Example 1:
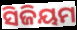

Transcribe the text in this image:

ସିଜିୟମ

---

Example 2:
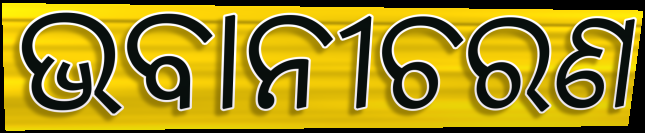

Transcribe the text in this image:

ଭବାନୀଚରଣ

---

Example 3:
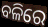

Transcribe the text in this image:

ବଳିରେ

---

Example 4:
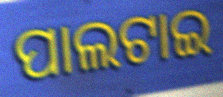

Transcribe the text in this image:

ପାଲଟାଇ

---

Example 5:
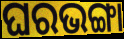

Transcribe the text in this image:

ଘରଭଙ୍ଗା